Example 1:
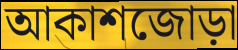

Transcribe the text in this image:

আকাশজোড়া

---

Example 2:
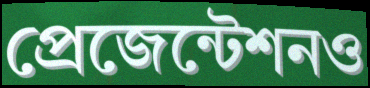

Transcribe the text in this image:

প্রেজেন্টেশনও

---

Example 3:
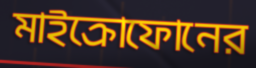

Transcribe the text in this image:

মাইক্রোফোনের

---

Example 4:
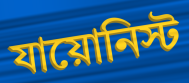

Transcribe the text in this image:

যায়োনিস্ট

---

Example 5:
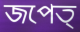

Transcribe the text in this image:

জপেত্